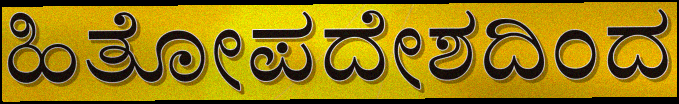
ಹಿತೋಪದೇಶದಿಂದ